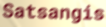
Satsangis